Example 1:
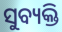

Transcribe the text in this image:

ସୁବ୍ୟକ୍ତି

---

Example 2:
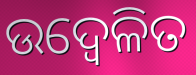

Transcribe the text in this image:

ଉଦ୍ବେଳିତ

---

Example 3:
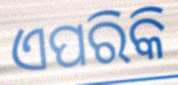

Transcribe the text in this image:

ଏପରିକି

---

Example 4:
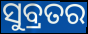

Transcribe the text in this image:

ସୁବ୍ରତର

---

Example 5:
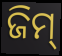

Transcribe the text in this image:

ଜିମ୍